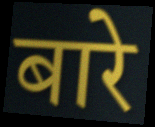
बारे